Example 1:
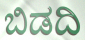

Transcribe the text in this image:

ಬಿಡದಿ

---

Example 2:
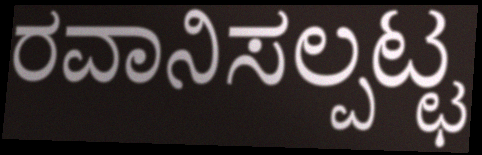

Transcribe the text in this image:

ರವಾನಿಸಲ್ಪಟ್ಟ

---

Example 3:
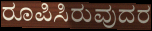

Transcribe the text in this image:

ರೂಪಿಸಿರುವುದರ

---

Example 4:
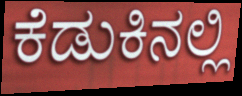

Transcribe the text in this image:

ಕೆಡುಕಿನಲ್ಲಿ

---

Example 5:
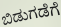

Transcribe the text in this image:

ಬಿಡುಗಡೆಗೆ